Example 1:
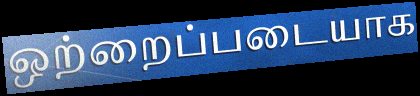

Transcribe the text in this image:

ஒற்றைப்படையாக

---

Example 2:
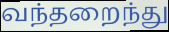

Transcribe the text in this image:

வந்தறைந்து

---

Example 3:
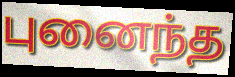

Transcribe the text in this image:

புனைந்த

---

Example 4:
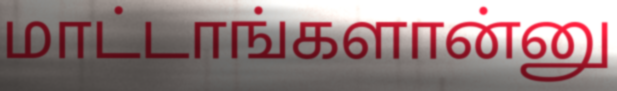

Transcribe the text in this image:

மாட்டாங்களான்னு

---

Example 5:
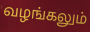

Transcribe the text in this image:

வழங்கலும்